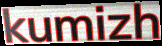
kumizh